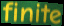
finite